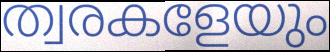
ത്വരകളേയും